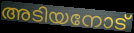
അടിയനോട്